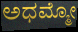
ಅಧಮ್ಮೋ